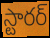
స్టారర్